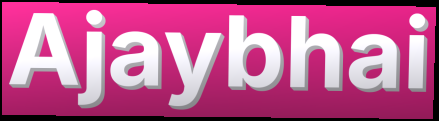
Ajaybhai